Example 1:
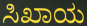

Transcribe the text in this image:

ಸಿಖಾಯ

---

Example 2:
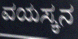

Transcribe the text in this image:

ವಯಸ್ಕನ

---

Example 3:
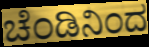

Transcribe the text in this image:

ಚೆಂಡಿನಿಂದ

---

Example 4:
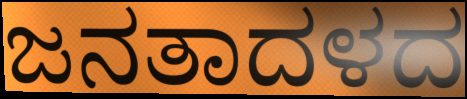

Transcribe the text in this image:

ಜನತಾದಳದ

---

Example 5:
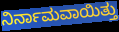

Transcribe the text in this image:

ನಿರ್ನಾಮವಾಯಿತ್ತು